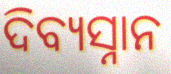
ଦିବ୍ୟସ୍ନାନ